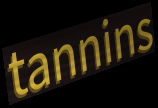
tannins